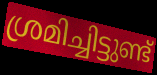
ശ്രമിച്ചിട്ടുണ്ട്